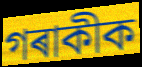
গৰাকীক